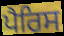
ਪੈਰਿਸ